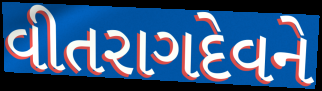
વીતરાગદેવને